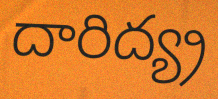
దారిద్య్ర